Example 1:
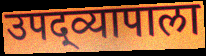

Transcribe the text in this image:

उपद्व्यापाला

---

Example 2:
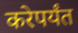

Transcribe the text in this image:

करेपर्यंत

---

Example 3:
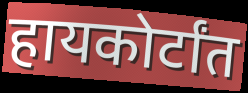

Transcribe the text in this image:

हायकोर्टांत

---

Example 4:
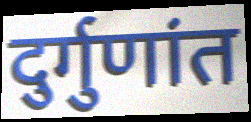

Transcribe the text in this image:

दुर्गुणांत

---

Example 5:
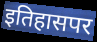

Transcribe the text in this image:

इतिहासपर